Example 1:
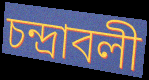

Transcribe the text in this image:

চন্দ্রাবলী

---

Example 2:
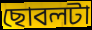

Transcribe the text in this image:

ছোবলটা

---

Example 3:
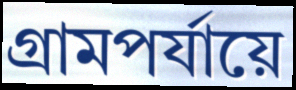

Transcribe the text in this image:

গ্রামপর্যায়ে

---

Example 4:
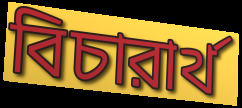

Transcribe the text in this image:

বিচারার্থ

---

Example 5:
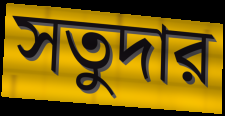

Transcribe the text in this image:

সতুদার